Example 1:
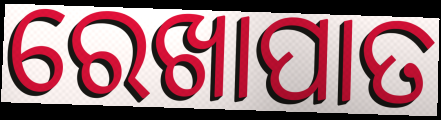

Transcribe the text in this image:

ରେଖାପାତ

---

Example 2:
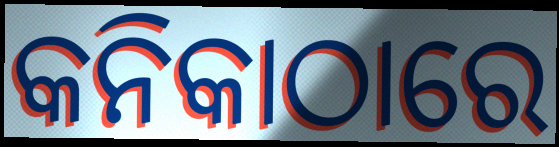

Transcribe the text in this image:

କନିକାଠାରେ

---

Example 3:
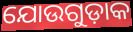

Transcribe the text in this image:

ଯୋଉଗୁଡ଼ାକ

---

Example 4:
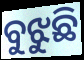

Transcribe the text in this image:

ବୁଝୁଛି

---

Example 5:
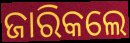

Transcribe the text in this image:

ଜାରିକଲେ